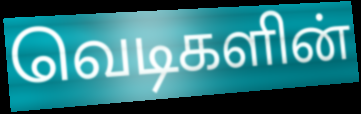
வெடிகளின்